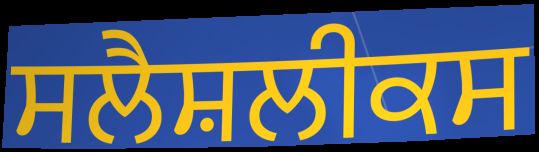
ਸਲੈਸ਼ਲੀਕਸ